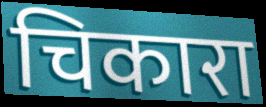
चिकारा